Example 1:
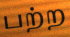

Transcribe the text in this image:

பற்ற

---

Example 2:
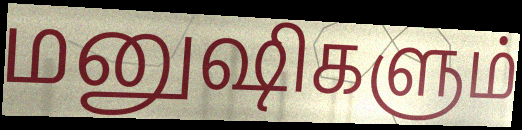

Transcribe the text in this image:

மனுஷிகளும்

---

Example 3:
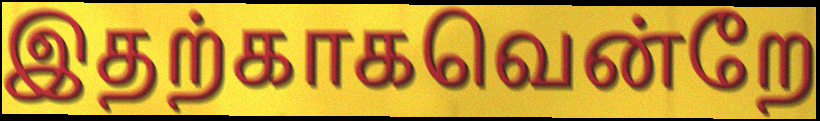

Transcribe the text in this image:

இதற்காகவென்றே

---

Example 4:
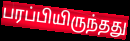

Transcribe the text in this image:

பரப்பியிருந்தது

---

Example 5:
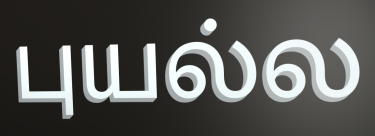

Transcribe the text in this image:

புயல்ல